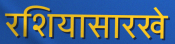
रशियासारखे